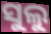
ସୁଲୁ